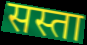
सस्ता